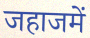
जहाजमें